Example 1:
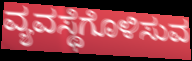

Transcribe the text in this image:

ವ್ಯವಸ್ಥೆಗೊಳಿಸುವ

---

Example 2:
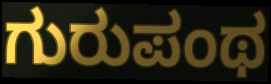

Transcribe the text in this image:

ಗುರುಪಂಥ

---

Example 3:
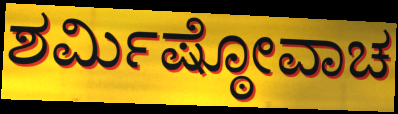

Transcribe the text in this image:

ಶರ್ಮಿಷ್ಠೋವಾಚ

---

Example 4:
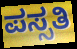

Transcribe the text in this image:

ಪಸ್ಸತಿ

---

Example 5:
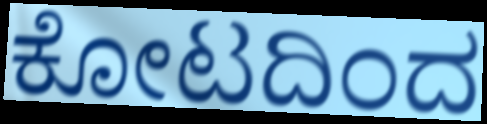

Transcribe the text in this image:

ಕೋಟದಿಂದ